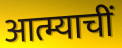
आत्म्याचीं